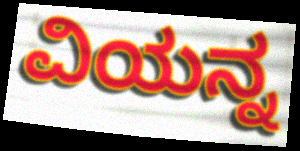
ವಿಯನ್ನ